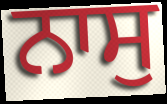
ਨਾਸੁ